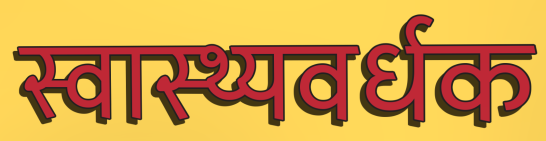
स्वास्थ्यवर्धक